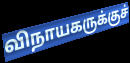
விநாயகருக்குச்